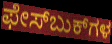
ಫೇಸ್‌ಬುಕ್‌ಗಳ